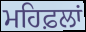
ਮਹਿਫ਼ਲਾਂ